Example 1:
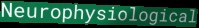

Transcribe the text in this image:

Neurophysiological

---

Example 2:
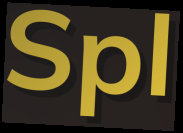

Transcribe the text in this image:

Spl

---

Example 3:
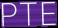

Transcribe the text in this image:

PTE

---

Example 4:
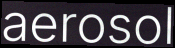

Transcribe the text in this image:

aerosol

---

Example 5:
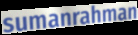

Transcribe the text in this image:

sumanrahman